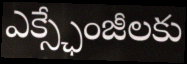
ఎక్స్ఛేంజీలకు